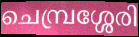
ചെമ്പ്രശ്ശേരി